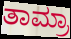
ತಾಮ್ರಾ